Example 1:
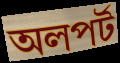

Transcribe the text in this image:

অলপর্ট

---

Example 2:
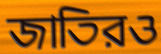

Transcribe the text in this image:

জাতিরও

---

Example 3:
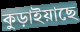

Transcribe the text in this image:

কুড়াইয়াছে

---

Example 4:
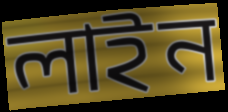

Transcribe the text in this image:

লাইন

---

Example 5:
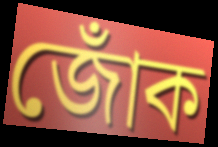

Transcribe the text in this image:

জোঁক